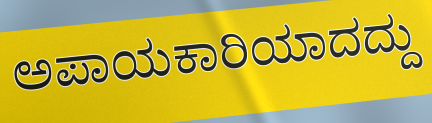
ಅಪಾಯಕಾರಿಯಾದದ್ದು